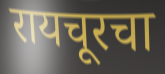
रायचूरचा